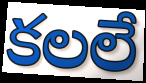
కలలే